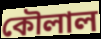
কৌলাল